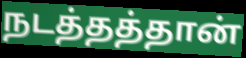
நடத்தத்தான்